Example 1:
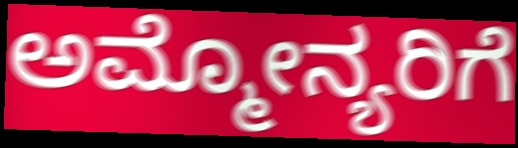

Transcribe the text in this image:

ಅಮ್ಮೋನ್ಯರಿಗೆ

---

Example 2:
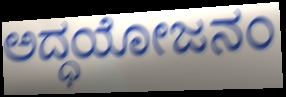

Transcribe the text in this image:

ಅದ್ಧಯೋಜನಂ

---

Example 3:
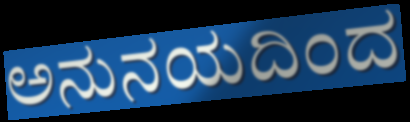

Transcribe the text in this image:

ಅನುನಯದಿಂದ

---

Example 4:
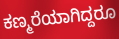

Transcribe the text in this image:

ಕಣ್ಮರೆಯಾಗಿದ್ದರೂ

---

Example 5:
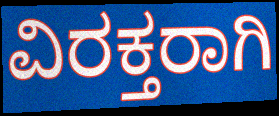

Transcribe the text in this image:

ವಿರಕ್ತರಾಗಿ